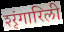
श्रृंगारिली